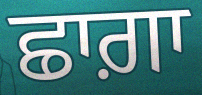
ਛਾਗ਼ਾ